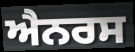
ਐਨਰਸ